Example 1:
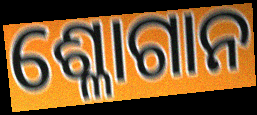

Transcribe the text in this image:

ଶ୍ଳୋଗାନ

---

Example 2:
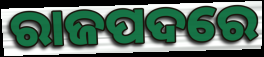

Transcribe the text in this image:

ରାଜପଦରେ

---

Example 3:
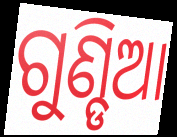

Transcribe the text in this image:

ଗୁଣ୍ଡିଆ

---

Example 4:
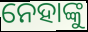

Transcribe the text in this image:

ନେହାଙ୍କୁ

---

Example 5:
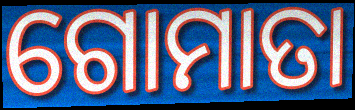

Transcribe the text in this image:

ଗୋମାତା